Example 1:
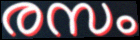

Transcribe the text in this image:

രസം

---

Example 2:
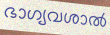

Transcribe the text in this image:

ഭാഗ്യവശാൽ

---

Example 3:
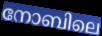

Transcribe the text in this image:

നോബിലെ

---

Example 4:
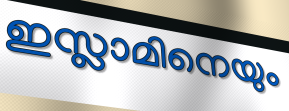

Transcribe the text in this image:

ഇസ്ലാമിനെയും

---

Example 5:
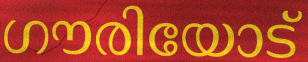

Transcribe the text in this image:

ഗൗരിയോട്